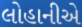
લોહાનીએ